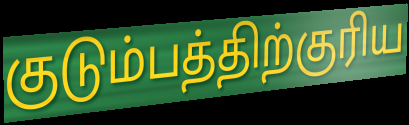
குடும்பத்திற்குரிய